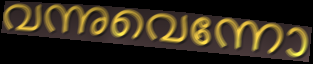
വന്നുവെന്നോ